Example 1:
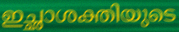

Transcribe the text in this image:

ഇച്ഛാശക്തിയുടെ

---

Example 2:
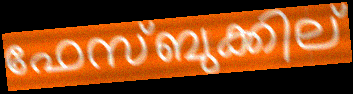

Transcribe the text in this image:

ഫേസ്ബുക്കില്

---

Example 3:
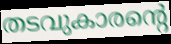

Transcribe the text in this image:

തടവുകാരന്റെ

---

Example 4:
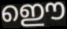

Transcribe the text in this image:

ഇൌ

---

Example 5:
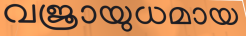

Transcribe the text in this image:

വജ്രായുധമായ